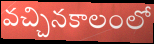
వచ్చినకాలంలో